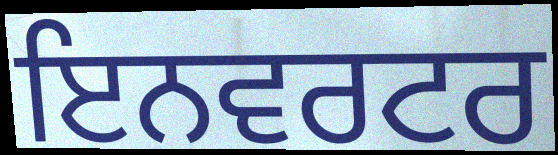
ਇਨਵਰਟਰ